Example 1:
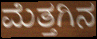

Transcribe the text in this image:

ಮೆತ್ತಗಿನ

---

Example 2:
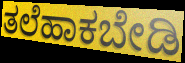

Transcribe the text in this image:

ತಲೆಹಾಕಬೇಡಿ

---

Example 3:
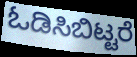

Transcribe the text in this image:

ಓಡಿಸಿಬಿಟ್ಟರೆ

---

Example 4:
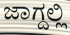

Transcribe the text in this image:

ಜಾಗ್ದಲ್ಲಿ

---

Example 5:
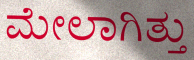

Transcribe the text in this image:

ಮೇಲಾಗಿತ್ತು